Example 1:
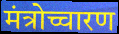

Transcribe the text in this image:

मंत्रोच्चारण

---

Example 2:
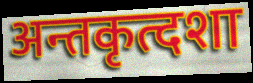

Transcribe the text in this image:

अन्तकृत्दशा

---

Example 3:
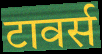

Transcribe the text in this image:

टावर्स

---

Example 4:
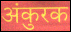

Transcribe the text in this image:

अंकुरक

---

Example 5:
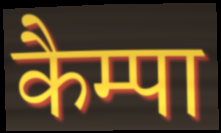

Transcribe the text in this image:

कैम्पा